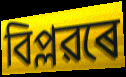
বিপ্লৱৰে